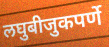
लघुबीजुकपर्णे